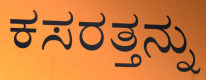
ಕಸರತ್ತನ್ನು